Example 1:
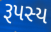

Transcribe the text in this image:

રૂપસ્ય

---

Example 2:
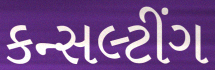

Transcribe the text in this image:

કન્સલ્ટીંગ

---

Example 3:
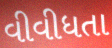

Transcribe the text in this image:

વીવીધતા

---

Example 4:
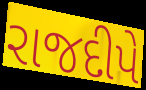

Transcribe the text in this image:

રાજદીપે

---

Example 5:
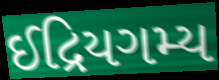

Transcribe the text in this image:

ઈદ્રિયગમ્ય